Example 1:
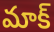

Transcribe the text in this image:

మాక్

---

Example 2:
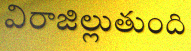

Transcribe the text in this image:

విరాజిల్లుతుంది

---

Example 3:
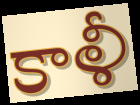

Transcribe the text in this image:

కాళీ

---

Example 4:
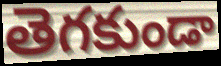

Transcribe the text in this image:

తెగకుండా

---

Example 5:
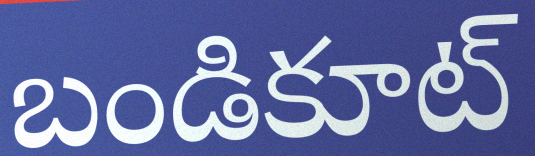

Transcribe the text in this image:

బండికూట్